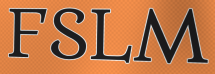
FSLM